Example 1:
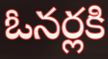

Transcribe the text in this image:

ఓనర్లకి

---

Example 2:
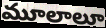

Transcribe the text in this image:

మూలాలూ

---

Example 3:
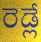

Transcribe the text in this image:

రెడ్లే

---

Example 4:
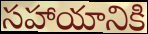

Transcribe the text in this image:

సహాయానికి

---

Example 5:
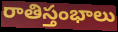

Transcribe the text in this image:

రాతిస్తంభాలు